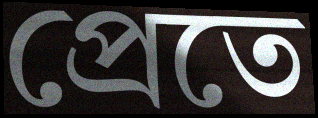
প্রেতে